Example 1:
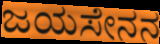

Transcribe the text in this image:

ಜಯಸೇನನ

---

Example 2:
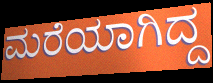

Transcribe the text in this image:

ಮರೆಯಾಗಿದ್ದ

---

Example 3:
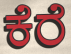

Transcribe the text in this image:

ಕೆರೆ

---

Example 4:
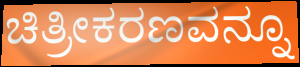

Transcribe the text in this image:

ಚಿತ್ರೀಕರಣವನ್ನೂ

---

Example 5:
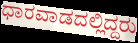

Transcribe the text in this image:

ಧಾರವಾಡದಲ್ಲಿದ್ದರು